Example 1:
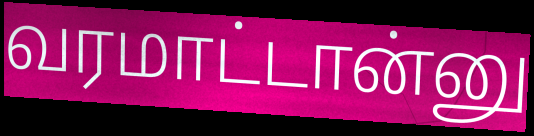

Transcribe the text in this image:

வரமாட்டான்னு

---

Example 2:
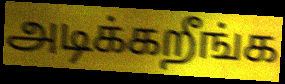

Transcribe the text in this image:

அடிக்கறீங்க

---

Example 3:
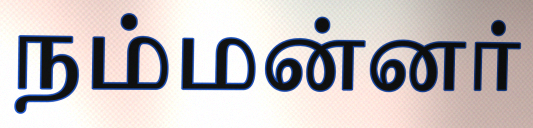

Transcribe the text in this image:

நம்மன்னர்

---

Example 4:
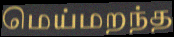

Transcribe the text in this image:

மெய்மறந்த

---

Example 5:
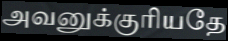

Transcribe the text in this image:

அவனுக்குரியதே